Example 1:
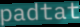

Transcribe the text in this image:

padtat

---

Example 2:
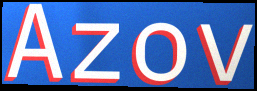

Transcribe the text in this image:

Azov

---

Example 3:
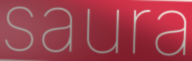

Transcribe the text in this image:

saura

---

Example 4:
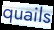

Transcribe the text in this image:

quails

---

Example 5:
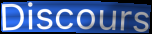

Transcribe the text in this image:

Discours